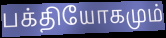
பக்தியோகமும்